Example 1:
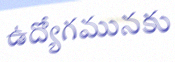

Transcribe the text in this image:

ఉద్యోగమునకు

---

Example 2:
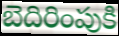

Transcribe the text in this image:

బెదిరింపుకి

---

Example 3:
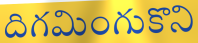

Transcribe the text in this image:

దిగమింగుకొని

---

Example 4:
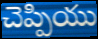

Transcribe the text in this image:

చెప్పియు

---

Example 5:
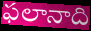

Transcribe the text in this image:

ఫలానాది